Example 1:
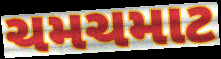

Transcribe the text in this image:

ચમચમાટ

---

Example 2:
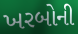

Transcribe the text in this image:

ખરબોની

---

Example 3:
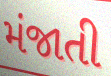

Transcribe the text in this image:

મંજાતી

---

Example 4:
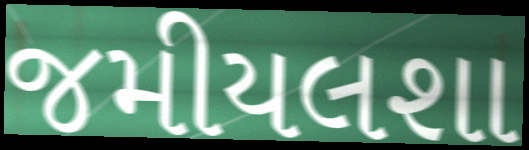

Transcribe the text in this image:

જમીયલશા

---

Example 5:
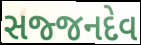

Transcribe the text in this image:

સજ્જનદેવ